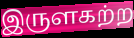
இருளகற்ற